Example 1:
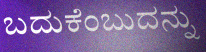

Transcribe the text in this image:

ಬದುಕೆಂಬುದನ್ನು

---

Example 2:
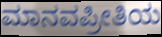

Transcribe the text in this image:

ಮಾನವಪ್ರೀತಿಯ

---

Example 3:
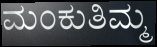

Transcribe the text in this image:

ಮಂಕುತಿಮ್ಮ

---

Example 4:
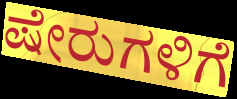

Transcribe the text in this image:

ಷೇರುಗಳಿಗೆ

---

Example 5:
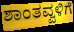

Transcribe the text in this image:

ಶಾಂತವ್ವಳಿಗೆ